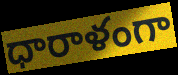
ధారాళంగా